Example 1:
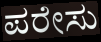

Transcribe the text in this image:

ಪರೇಸು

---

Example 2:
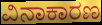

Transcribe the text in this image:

ವಿನಾಕಾರಣ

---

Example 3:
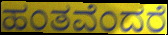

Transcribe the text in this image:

ಹಂತವೆಂದರೆ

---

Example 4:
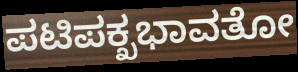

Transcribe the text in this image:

ಪಟಿಪಕ್ಖಭಾವತೋ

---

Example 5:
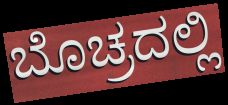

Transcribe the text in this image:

ಬೊಚ್ರದಲ್ಲಿ